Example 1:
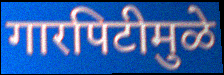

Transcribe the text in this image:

गारपिटीमुळे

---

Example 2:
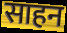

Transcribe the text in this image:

साहन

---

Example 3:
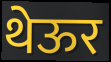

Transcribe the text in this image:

थेऊर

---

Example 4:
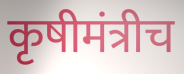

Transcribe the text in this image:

कृषीमंत्रीच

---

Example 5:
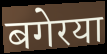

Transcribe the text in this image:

बगेरया